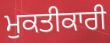
ਮੁਕਤੀਕਾਰੀ